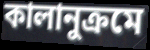
কালানুক্রমে